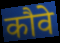
कौवे